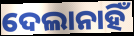
ଦେଲାନାହିଁ